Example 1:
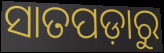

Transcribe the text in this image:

ସାତପଡ଼ାରୁ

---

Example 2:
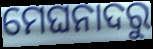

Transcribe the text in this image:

ମେଘନାଦରୁ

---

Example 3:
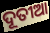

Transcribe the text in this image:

ଦୂତୀଆ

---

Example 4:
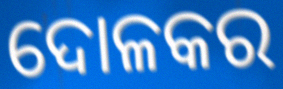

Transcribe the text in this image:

ଦୋଳକର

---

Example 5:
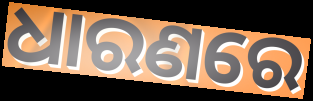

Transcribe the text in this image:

ଧାରଣରେ